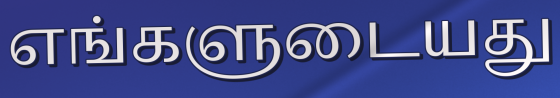
எங்களுடையது